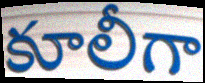
కూలీగా